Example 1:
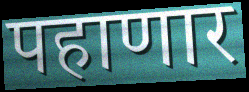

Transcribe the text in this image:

पहाणार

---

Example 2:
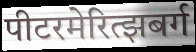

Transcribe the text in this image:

पीटरमेरित्झबर्ग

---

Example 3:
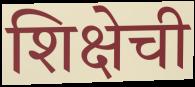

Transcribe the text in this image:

शिक्षेची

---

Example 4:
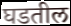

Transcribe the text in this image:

घडतील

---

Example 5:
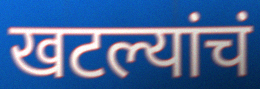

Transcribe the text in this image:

खटल्यांचं